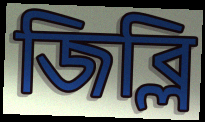
জিব্লি